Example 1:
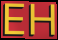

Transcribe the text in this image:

EH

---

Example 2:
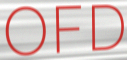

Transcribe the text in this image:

OFD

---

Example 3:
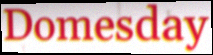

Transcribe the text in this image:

Domesday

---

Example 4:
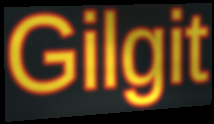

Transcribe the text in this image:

Gilgit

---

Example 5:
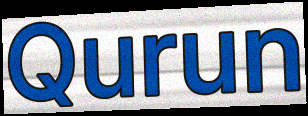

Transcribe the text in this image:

Qurun